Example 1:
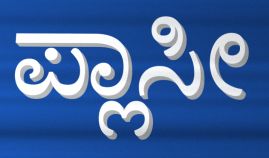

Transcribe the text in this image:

ಪ್ಲಾಸೀ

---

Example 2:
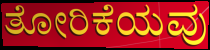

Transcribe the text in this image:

ತೋರಿಕೆಯವು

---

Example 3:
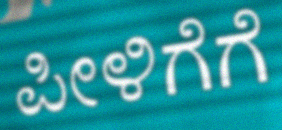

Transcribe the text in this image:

ಪೀಳಿಗೆಗೆ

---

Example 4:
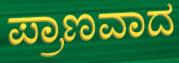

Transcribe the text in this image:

ಪ್ರಾಣವಾದ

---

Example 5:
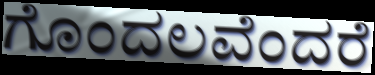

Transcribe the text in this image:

ಗೊಂದಲವೆಂದರೆ